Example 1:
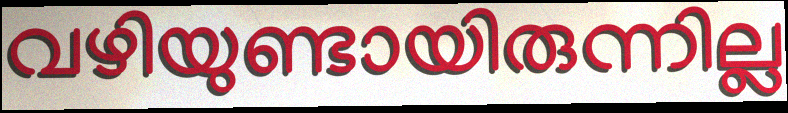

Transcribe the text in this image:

വഴിയുണ്ടായിരുന്നില്ല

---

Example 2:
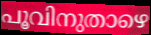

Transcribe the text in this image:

പൂവിനുതാഴെ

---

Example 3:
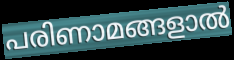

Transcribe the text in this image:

പരിണാമങ്ങളാൽ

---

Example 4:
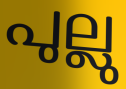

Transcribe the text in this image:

പുല്ലു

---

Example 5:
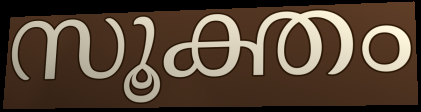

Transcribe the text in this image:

സൂക്തം